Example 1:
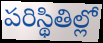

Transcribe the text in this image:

పరిస్థితిల్లో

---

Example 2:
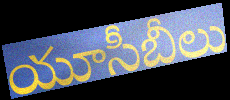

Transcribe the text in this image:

యూసీబీలు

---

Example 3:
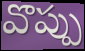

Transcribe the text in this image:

వొప్పు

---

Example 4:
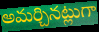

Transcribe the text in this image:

అమర్చినట్లుగా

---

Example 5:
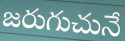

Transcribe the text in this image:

జరుగుచునే